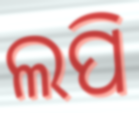
ଲପି